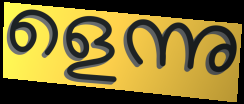
ളെന്നു